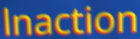
lnaction